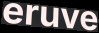
eruve